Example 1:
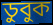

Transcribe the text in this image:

ডুবুক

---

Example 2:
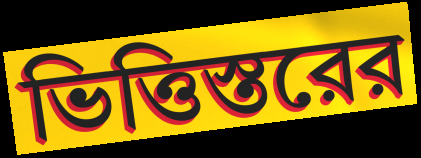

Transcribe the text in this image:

ভিত্তিস্তরের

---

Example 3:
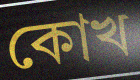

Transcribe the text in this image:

কোখ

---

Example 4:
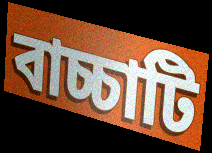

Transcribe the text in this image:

বাচ্চাটি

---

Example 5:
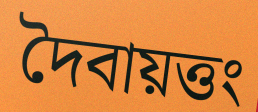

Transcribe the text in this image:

দৈবায়ত্তং